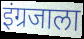
इंग्रजाला